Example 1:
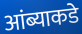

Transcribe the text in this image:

आंब्याकडे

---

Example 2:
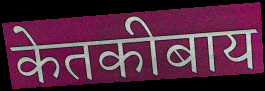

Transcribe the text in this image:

केतकीबाय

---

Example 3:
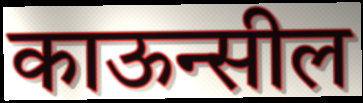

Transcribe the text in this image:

काऊन्सील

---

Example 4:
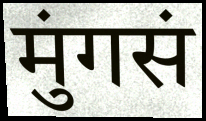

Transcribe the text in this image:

मुंगसं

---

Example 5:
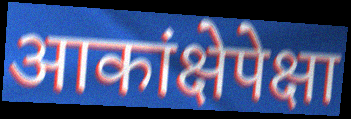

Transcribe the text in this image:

आकांक्षेपेक्षा